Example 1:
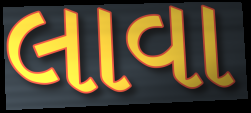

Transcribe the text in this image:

લાવા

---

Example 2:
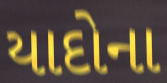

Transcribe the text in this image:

યાદોના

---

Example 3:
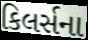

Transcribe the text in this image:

કિલર્સના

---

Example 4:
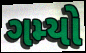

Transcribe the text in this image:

ગમ્યો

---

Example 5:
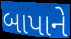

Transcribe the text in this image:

બાપાને